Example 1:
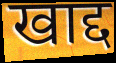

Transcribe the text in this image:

खाद्द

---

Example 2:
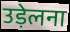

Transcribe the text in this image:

उड़ेलना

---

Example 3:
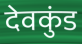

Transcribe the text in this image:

देवकुंड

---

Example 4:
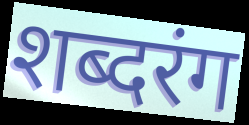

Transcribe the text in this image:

शब्दरंग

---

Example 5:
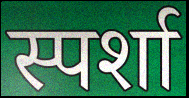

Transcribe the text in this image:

स्पर्शा